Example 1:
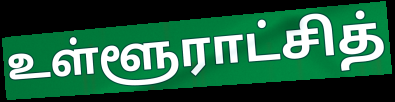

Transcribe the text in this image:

உள்ளூராட்சித்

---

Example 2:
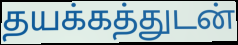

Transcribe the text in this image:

தயக்கத்துடன்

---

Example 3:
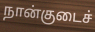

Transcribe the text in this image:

நான்குடைச்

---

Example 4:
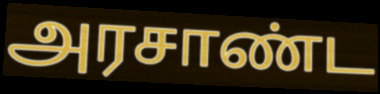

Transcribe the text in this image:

அரசாண்ட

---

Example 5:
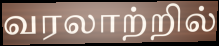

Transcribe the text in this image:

வரலாற்றில்